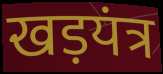
खड़यंत्र